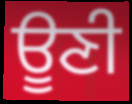
ਊਣੀ